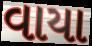
વાયા